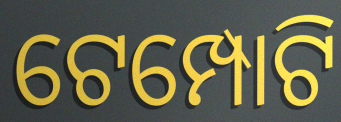
ଟେମ୍ପୋଟି